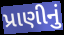
પ્રાણીનું